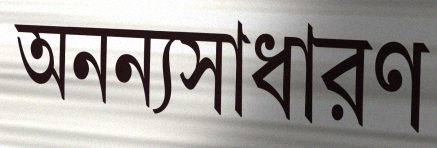
অনন্যসাধারণ